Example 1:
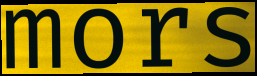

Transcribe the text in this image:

mors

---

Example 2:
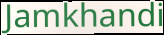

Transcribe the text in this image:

Jamkhandi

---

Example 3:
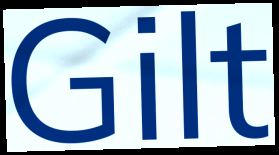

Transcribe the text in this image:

Gilt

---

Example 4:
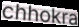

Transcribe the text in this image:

chhokra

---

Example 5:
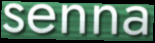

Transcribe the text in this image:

senna